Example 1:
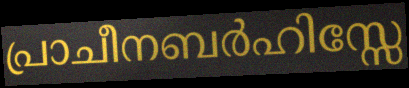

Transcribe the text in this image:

പ്രാചീനബർഹിസ്സേ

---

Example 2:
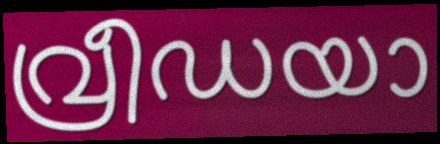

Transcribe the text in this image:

വ്രീഡയാ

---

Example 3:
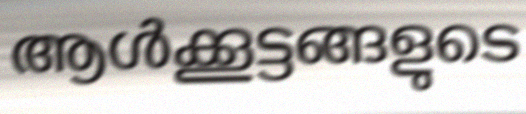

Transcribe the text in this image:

ആൾക്കൂട്ടങ്ങളുടെ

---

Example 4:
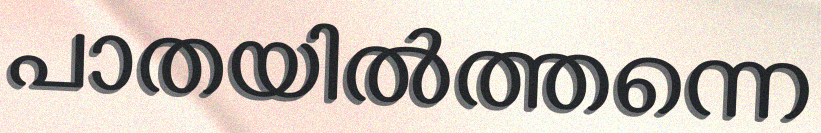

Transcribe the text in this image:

പാതയിൽത്തന്നെ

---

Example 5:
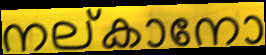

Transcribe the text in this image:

നല്കാനോ